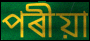
পৰীয়া